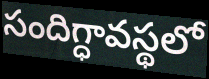
సందిగ్ధావస్థలో